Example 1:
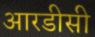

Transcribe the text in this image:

आरडीसी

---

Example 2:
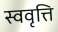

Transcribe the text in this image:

स्ववृत्ति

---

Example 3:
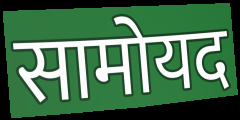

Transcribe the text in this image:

सामोयद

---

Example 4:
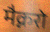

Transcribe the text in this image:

मैक्नरो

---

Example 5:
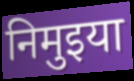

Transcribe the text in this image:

निमुइया